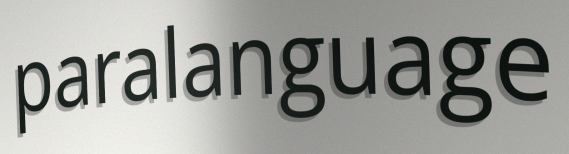
paralanguage